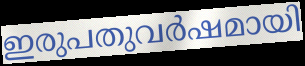
ഇരുപതുവർഷമായി